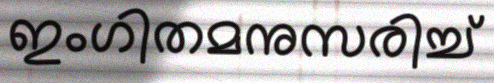
ഇംഗിതമനുസരിച്ച്